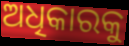
ଅଧିକାରକୁ